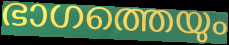
ഭാഗത്തെയും